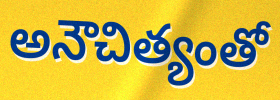
అనౌచిత్యంతో